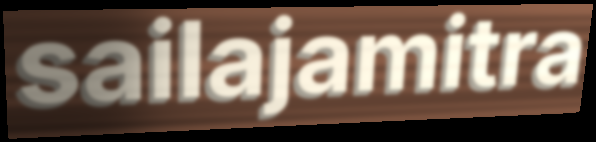
sailajamitra